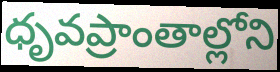
ధృవప్రాంతాల్లోని